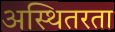
अस्थितरता